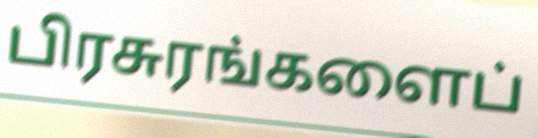
பிரசுரங்களைப்